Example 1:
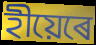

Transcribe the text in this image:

হীয়েৰে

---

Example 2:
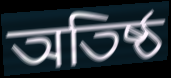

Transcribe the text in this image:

অতিষ্ঠ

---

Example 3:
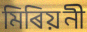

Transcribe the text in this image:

মিৰিয়নী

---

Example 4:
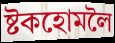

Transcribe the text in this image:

ষ্টকহোমলৈ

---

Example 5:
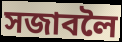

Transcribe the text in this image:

সজাবলৈ